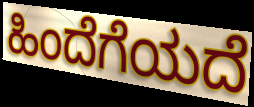
ಹಿಂದೆಗೆಯದೆ